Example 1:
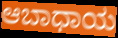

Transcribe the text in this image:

ಆಬಾಧಾಯ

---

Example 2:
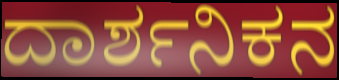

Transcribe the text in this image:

ದಾರ್ಶನಿಕನ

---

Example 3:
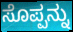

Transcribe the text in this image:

ಸೊಪ್ಪನ್ನು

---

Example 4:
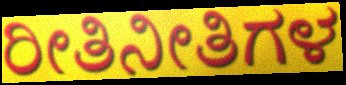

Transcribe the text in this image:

ರೀತಿನೀತಿಗಳ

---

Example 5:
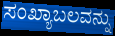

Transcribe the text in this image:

ಸಂಖ್ಯಾಬಲವನ್ನು